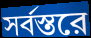
সর্বস্তরে